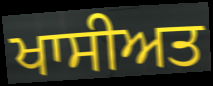
ਖਾਸੀਅਤ